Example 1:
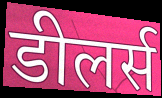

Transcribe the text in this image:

डीलर्स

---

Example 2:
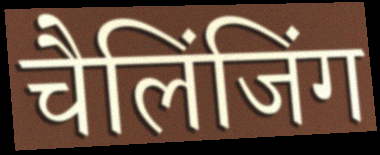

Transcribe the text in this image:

चैलिंजिंग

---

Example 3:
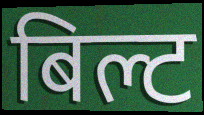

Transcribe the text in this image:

बिल्‍ट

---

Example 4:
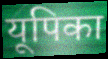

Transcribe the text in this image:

यूपिका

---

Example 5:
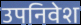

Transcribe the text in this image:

उपनिवेश